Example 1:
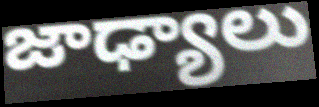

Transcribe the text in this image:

జాఢ్యాలు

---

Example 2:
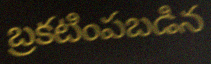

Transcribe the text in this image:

బ్రకటింపబడిన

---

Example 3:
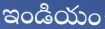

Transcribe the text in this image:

ఇండియం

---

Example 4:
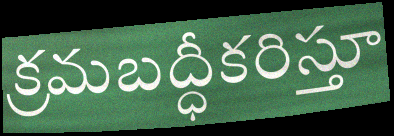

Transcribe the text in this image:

క్రమబద్ధీకరిస్తూ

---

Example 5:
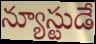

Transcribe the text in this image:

న్యూస్టుడే